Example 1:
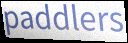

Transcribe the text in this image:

paddlers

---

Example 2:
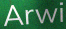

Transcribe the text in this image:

Arwi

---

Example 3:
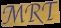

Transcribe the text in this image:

MRT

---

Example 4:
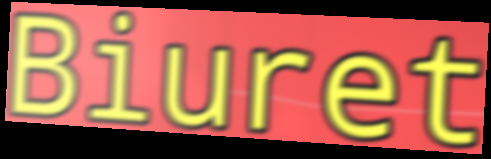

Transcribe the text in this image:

Biuret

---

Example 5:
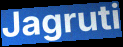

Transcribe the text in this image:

Jagruti